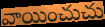
వాయించుచు